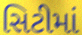
સિટીમાં